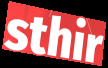
sthir